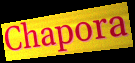
Chapora